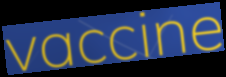
vaccine